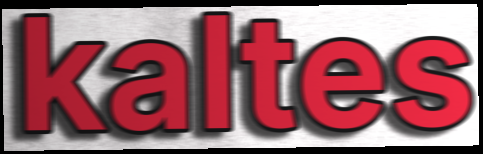
kaltes